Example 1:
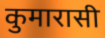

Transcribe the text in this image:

कुमारासी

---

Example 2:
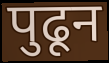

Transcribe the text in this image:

पुढून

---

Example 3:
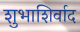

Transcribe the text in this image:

शुभाशिर्वाद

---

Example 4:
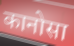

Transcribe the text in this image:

कानोसा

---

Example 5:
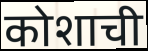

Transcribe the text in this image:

कोशाची